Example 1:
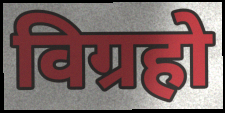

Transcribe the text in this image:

विग्रहो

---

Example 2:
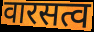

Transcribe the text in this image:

वारसत्व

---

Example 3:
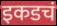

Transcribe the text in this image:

इकडचं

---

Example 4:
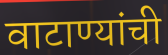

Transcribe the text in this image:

वाटाण्यांची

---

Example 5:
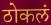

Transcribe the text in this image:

ठोकलं